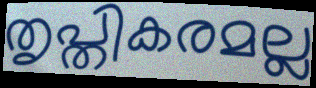
തൃപ്തികരമല്ല